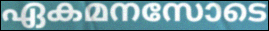
ഏകമനസോടെ